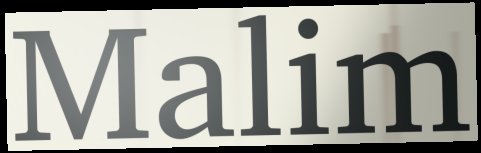
Malim